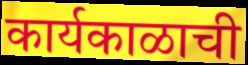
कार्यकाळाची